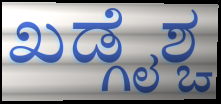
ಖಡ್ಗೈಶ್ಚ